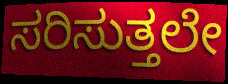
ಸರಿಸುತ್ತಲೇ